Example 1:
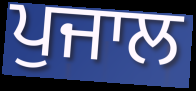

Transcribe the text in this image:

ਪੁਜਾਲ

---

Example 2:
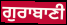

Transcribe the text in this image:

ਗੁਰਾਬਾਣੀ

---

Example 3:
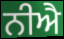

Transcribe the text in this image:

ਨੀਐ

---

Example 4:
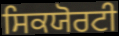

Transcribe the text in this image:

ਸਿਕਯੋਰਟੀ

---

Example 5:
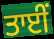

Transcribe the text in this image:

ਤਾਈਂ